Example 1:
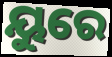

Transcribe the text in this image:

ୟୁରେ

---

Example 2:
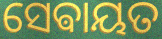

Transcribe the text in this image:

ସେଵାୟତ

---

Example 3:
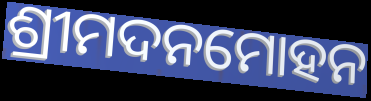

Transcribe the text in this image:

ଶ୍ରୀମଦନମୋହନ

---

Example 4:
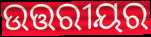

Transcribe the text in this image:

ଉତ୍ତରୀୟର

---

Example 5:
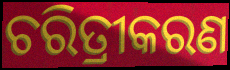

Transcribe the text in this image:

ଚରିତ୍ରୀକରଣ